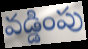
వడ్డింపు